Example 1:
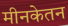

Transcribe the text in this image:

मीनकेतन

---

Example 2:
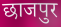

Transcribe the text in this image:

छाजपुर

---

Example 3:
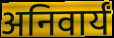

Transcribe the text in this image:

अनिवार्यं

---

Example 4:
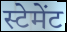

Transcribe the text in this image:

स्टेमेंट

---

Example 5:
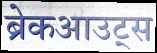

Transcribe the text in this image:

ब्रेकआउट्स